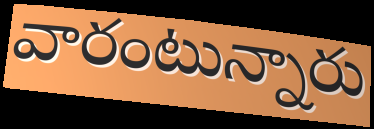
వారంటున్నారు